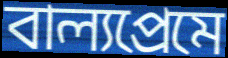
বাল্যপ্রেমে